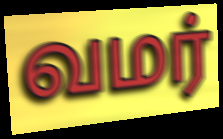
வமர்